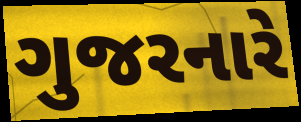
ગુજરનારે